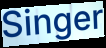
Singer